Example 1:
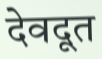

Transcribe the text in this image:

देवदूत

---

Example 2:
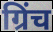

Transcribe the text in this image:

ग्रिंच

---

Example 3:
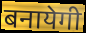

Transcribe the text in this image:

बनायेगी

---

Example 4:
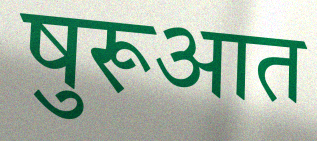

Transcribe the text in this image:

षुरूआत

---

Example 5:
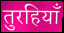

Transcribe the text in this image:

तुरहियाँ